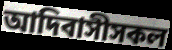
আদিবাসীসকল